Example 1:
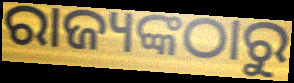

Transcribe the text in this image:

ରାଜ୍ୟଙ୍କଠାରୁ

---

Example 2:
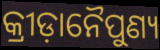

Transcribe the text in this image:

କ୍ରୀଡ଼ାନୈପୁଣ୍ୟ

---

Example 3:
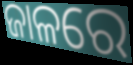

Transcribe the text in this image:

ଜାଳରେ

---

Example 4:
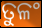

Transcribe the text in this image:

ତୁଳଂ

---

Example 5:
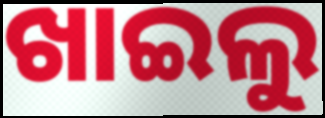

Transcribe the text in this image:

ଖାଇଲୁ